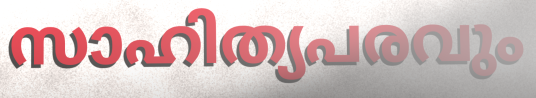
സാഹിത്യപരവും